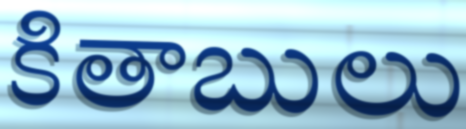
కితాబులు